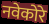
नवेकोरे